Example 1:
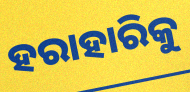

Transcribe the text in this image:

ହରାହାରିକୁ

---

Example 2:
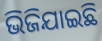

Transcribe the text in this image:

ଭିଜିଯାଇଛି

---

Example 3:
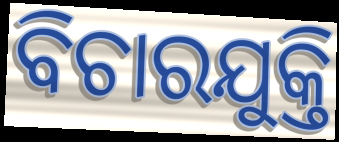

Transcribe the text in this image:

ବିଚାରଯୁକ୍ତି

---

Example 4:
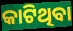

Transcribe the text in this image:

କାଟିଥିବା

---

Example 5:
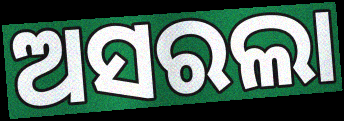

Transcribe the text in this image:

ଅସରଲା